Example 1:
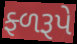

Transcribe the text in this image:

ફ્ળરૂપે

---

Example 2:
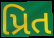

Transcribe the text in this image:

પ્રિત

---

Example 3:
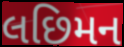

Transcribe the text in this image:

લછિમન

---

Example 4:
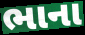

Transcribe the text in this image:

ભાના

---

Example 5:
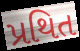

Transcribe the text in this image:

પ્રથિત